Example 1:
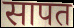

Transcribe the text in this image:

सापत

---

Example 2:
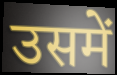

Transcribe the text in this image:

उसमें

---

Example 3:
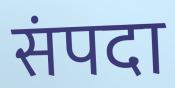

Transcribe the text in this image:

संपदा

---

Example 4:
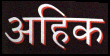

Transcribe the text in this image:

अहिक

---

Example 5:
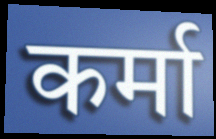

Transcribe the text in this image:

कर्मा